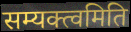
सम्यक्त्वमिति